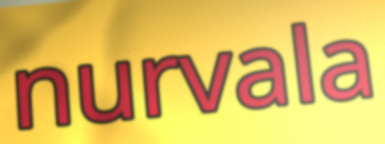
nurvala